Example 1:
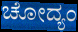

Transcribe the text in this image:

ಚೋದ್ಯಂ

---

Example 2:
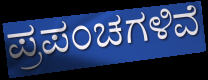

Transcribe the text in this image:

ಪ್ರಪಂಚಗಳಿವೆ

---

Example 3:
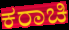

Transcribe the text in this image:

ಕರಾಚಿ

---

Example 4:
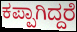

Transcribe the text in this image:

ಕಪ್ಪಾಗಿದ್ದರೆ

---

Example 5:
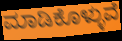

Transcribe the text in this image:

ಮಾಡಿಕೊಳ್ಳುವೆ